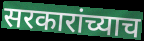
सरकारांच्याच